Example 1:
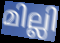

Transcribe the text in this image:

മില്ലി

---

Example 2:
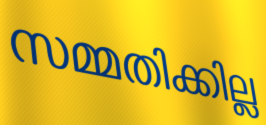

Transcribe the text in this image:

സമ്മതിക്കില്ല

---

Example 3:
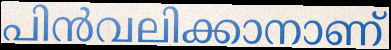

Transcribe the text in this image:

പിൻവലിക്കാനാണ്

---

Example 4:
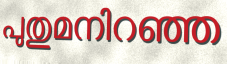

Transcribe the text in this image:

പുതുമനിറഞ്ഞ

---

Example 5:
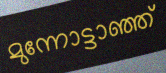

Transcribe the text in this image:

മുന്നോട്ടാഞ്ഞ്